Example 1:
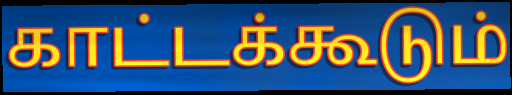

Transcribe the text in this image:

காட்டக்கூடும்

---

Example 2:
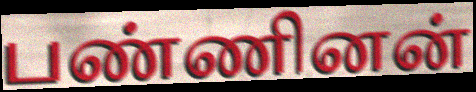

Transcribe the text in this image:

பண்ணினன்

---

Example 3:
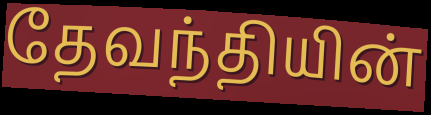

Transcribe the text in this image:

தேவந்தியின்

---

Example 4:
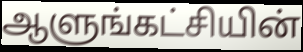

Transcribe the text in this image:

ஆளுங்கட்சியின்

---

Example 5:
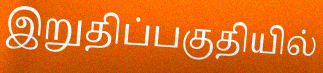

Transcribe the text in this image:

இறுதிப்பகுதியில்